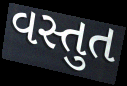
વસ્તુત